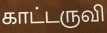
காட்டருவி